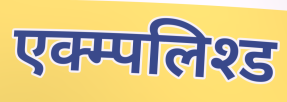
एक्म्पलिश्ड